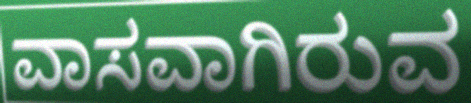
ವಾಸವಾಗಿರುವ